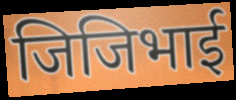
जिजिभाई